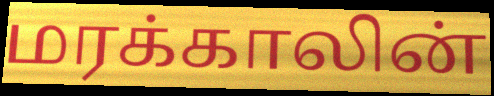
மரக்காலின்